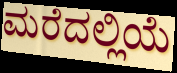
ಮರೆದಲ್ಲಿಯೆ